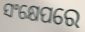
ସଂକ୍ଷେପରେ